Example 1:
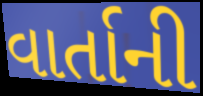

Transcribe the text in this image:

વાર્તાની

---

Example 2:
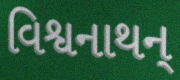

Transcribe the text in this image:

વિશ્વનાથન્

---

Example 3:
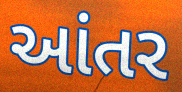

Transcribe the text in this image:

આંતર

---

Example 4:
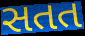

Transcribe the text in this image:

સતત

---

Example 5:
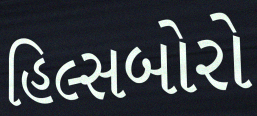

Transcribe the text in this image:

હિલ્સબોરો